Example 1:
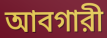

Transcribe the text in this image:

আবগারী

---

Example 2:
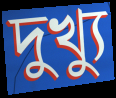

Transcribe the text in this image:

দুখ্যু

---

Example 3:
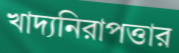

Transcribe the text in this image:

খাদ্যনিরাপত্তার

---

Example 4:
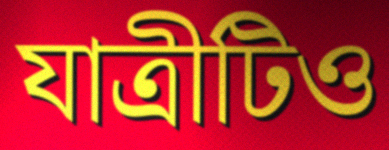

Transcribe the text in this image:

যাত্রীটিও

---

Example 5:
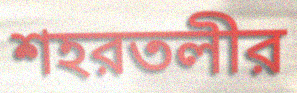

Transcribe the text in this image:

শহরতলীর